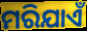
ମରିଯାଏଁ